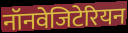
नॉनवेजिटेरियन